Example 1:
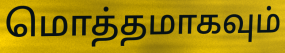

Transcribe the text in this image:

மொத்தமாகவும்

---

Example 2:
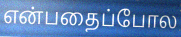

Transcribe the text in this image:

என்பதைப்போல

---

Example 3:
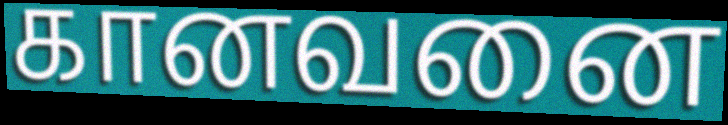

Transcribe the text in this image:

கானவனை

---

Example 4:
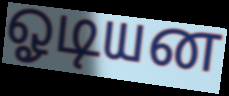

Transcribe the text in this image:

ஓடியன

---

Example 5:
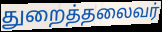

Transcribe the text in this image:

துறைத்தலைவர்